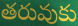
తరువుకు